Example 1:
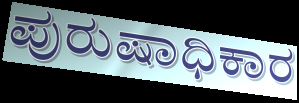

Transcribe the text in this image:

ಪುರುಷಾಧಿಕಾರ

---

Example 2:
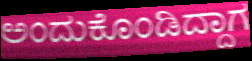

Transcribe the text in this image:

ಅಂದುಕೊಂಡಿದ್ದಾಗ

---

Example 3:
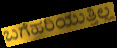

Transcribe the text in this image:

ಬಗೆಹರಿಯುತ್ತಿಲ್ಲ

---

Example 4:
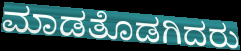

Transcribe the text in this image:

ಮಾಡತೊಡಗಿದರು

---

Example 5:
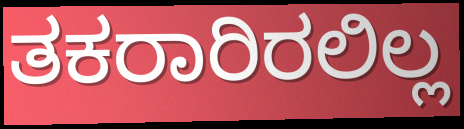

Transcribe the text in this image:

ತಕರಾರಿರಲಿಲ್ಲ